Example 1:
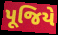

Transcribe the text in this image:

પૂજિયે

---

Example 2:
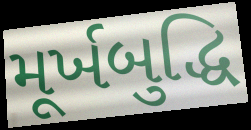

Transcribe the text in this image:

મૂર્ખબુદ્ધિ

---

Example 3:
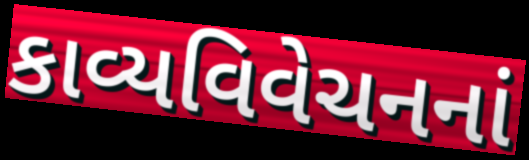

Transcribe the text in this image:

કાવ્યવિવેચનનાં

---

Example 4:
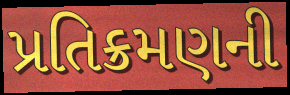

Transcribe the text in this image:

પ્રતિક્રમણની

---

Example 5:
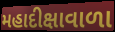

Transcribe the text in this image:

મહાદીક્ષાવાળા